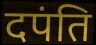
दपंति